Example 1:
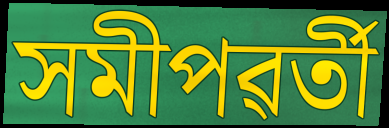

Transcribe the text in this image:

সমীপৱৰ্তী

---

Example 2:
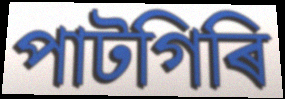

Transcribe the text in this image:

পাটগিৰি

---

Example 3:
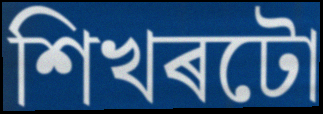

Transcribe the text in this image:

শিখৰটো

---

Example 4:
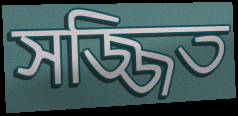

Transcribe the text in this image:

সজ্জিত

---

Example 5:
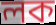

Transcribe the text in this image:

লক